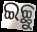
ଇଚ୍ଛୁ